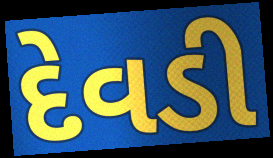
દેવડી